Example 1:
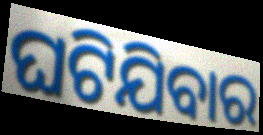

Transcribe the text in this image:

ଘଟିଯିବାର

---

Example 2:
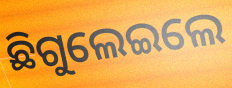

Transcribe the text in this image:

ଛିଗୁଲେଇଲେ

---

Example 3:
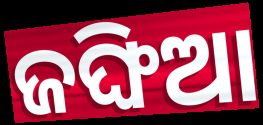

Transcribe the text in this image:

ଜଙ୍ଘିଆ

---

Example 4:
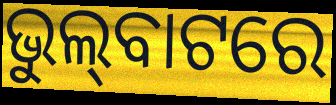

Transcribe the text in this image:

ଭୁଲ୍‌ବାଟରେ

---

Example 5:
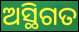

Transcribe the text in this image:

ଅସ୍ଥିଗତ